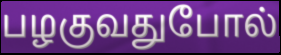
பழகுவதுபோல்